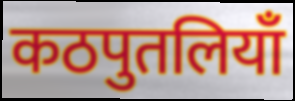
कठपुतलियाँ